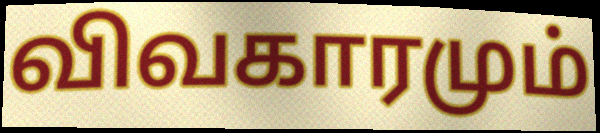
விவகாரமும்